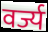
वर्ज्य